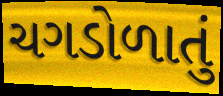
ચગડોળાતું